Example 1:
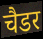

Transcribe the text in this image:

चैडर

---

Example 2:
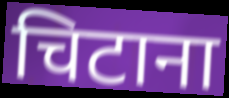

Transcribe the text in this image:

चिटाना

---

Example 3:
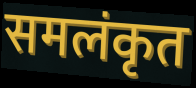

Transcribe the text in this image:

समलंकृत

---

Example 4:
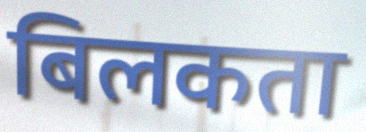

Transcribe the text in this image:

बिलकता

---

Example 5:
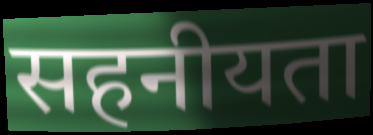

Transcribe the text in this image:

सहनीयता